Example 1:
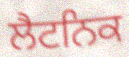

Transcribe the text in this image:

ਲੈਟਨਿਕ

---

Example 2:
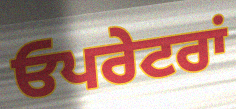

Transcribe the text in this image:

ਓਪਰੇਟਰਾਂ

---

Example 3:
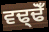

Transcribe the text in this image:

ਵਢ੍ਢੋਁ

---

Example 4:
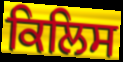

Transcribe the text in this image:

ਕਿਲਿਸ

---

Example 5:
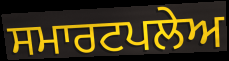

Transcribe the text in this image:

ਸਮਾਰਟਪਲੇਅ